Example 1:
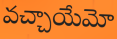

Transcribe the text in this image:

వచ్చాయేమో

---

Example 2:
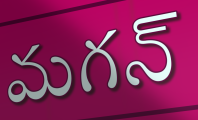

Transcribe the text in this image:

మగన్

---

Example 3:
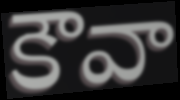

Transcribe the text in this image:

కౌవా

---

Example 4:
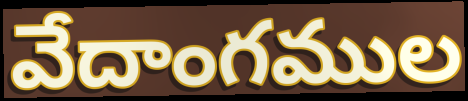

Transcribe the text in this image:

వేదాంగముల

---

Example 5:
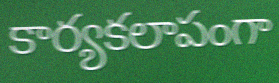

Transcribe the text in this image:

కార్యకలాపంగా